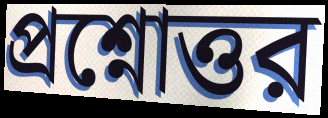
প্রশ্নোত্তর